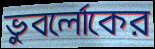
ভুবর্লোকের